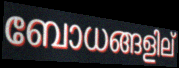
ബോധങ്ങളില്